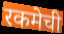
रकमेची